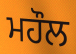
ਮਹੌਲ